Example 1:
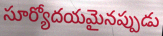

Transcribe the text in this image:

సూర్యోదయమైనప్పుడు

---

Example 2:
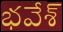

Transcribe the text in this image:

భవేశ్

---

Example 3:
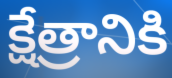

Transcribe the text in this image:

క్షేత్రానికి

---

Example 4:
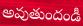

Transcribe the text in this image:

అవుతుందండీ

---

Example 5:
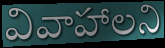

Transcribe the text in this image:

వివాహాలని